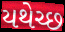
યથેચ્છ